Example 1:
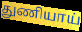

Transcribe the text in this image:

துணியாய்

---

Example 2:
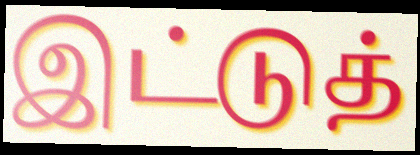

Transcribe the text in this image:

இட்டுத்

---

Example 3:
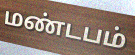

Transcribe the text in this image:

மண்டபம்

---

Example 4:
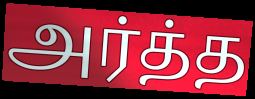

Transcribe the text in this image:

அர்த்த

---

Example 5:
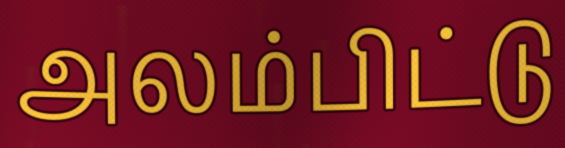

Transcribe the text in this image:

அலம்பிட்டு